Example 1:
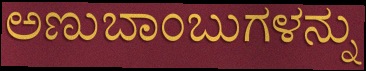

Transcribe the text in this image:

ಅಣುಬಾಂಬುಗಳನ್ನು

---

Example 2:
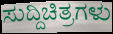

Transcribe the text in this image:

ಸುದ್ದಿಚಿತ್ರಗಳು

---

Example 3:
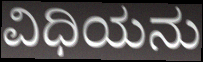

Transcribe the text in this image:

ವಿಧಿಯನು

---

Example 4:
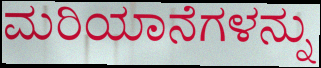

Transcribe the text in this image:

ಮರಿಯಾನೆಗಳನ್ನು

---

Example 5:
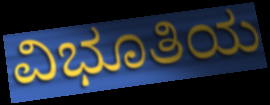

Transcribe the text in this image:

ವಿಭೂತಿಯ